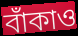
বাঁকাও